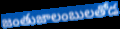
జంతుజాలంబులతోడ